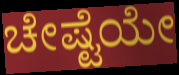
ಚೇಷ್ಟೆಯೇ